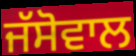
ਜੱਸੋਵਾਲ